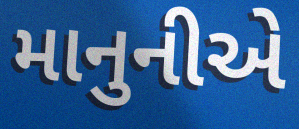
માનુનીએ